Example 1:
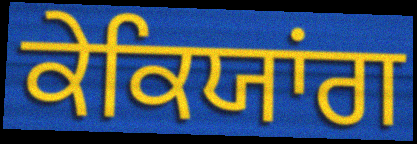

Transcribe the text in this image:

ਕੇਕਿਯਾਂਗ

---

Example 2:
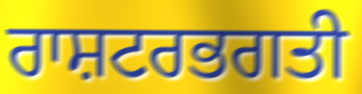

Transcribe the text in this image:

ਰਾਸ਼ਟਰਭਗਤੀ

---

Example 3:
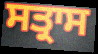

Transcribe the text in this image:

ਸਤ੍ਰਾਸ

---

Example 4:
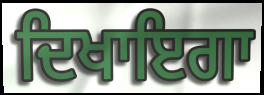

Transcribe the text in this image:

ਦਿਖਾਇਗਾ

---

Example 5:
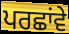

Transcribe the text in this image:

ਪਰਛਾਂਵੇ